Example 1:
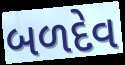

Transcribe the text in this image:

બળદેવ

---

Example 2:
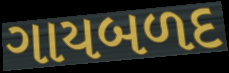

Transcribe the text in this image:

ગાયબળદ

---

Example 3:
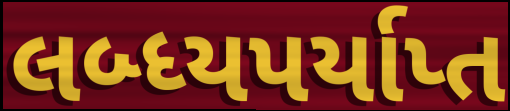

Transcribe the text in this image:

લબ્ધ્યપર્યાપ્ત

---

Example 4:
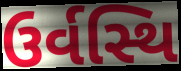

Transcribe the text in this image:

ઉર્વસ્થિ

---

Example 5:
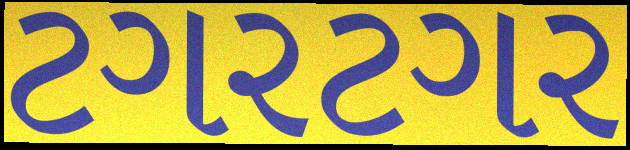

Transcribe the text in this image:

ટગરટગર